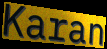
Karan